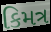
કિમત્ર